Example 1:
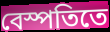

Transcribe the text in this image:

বেস্পতিতে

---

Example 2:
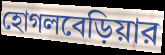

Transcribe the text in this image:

হোগলবেড়িয়ার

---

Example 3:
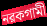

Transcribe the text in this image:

নরকগামী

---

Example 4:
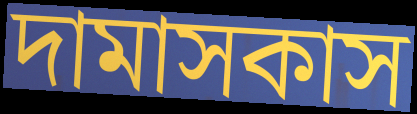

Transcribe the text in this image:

দামাসকাস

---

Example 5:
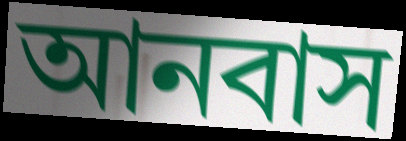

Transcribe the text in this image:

আনবাস